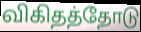
விகிதத்தோடு